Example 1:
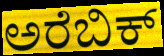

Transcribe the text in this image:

ಅರೆಬಿಕ್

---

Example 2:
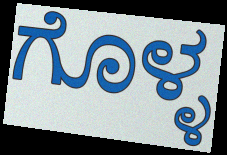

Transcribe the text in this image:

ಗೊಳ್ಳ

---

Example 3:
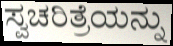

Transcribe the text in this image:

ಸ್ವಚರಿತ್ರೆಯನ್ನು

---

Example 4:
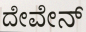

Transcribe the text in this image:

ದೇವೇನ್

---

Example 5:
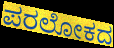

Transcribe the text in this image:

ಪರಲೋಕದ